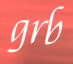
grb